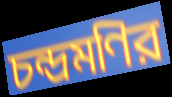
চন্দ্রমণির